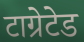
टाग्रेटेड